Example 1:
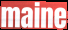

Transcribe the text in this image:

maine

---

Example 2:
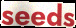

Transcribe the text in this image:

seeds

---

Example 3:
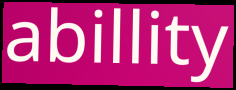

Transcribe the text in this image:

abillity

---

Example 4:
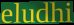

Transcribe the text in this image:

eludhi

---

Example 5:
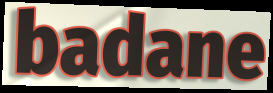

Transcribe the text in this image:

badane